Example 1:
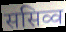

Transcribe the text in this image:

ससिव्व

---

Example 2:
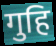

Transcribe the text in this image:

गुहि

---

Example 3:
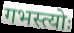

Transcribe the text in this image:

गभस्त्योः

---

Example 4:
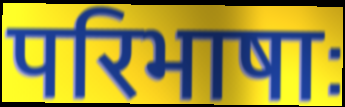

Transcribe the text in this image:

परिभाषाः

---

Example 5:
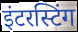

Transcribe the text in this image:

इंटरस्टिंग